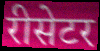
रीसेटर